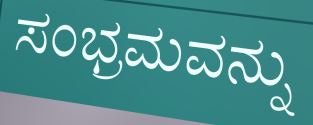
ಸಂಭ್ರಮವನ್ನು